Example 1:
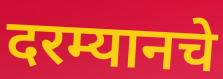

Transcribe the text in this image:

दरम्यानचे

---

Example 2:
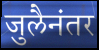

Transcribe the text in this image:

जुलैनंतर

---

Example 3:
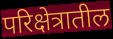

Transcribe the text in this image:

परिक्षेत्रातील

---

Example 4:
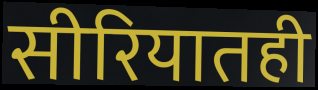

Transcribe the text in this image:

सीरियातही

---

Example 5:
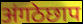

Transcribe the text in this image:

अंगठेछाप